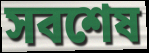
সবশেষ